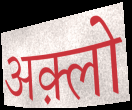
अक़्लो